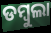
ଡମ୍ୱୁଲା